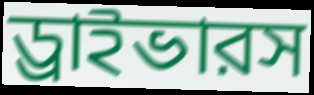
ড্রাইভারস